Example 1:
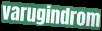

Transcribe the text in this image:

varugindrom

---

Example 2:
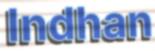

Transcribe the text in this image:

Indhan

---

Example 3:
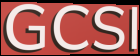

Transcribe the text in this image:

GCSI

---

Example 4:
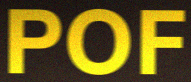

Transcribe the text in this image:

POF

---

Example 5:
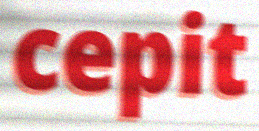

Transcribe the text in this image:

cepit